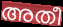
അതീ